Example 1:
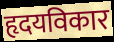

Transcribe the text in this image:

हृदयविकार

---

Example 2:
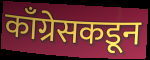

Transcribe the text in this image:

काँग्रेसकडून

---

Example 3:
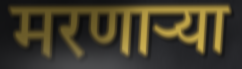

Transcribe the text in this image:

मरणार्‍या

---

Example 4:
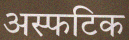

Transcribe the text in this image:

अस्फटिक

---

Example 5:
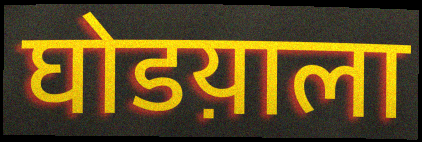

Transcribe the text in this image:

घोडय़ाला